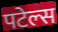
पटेल्स